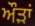
ਔੜਾਂ